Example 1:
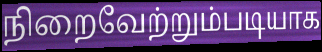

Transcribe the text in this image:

நிறைவேற்றும்படியாக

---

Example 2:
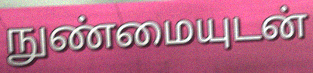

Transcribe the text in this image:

நுண்மையுடன்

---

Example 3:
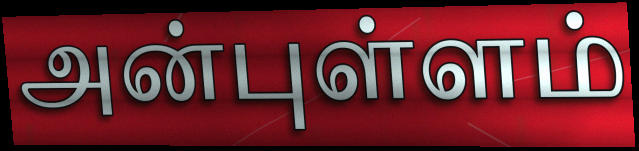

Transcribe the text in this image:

அன்புள்ளம்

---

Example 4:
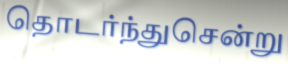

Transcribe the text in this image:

தொடர்ந்துசென்று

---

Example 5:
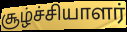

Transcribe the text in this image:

சூழ்ச்சியாளர்